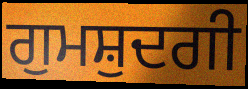
ਗੁਮਸ਼ੁਦਗੀ